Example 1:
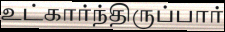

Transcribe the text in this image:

உட்கார்ந்திருப்பார்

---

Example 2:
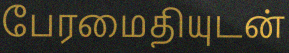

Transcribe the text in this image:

பேரமைதியுடன்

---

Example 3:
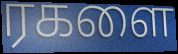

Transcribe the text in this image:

ரகளை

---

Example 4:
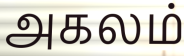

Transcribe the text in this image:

அகலம்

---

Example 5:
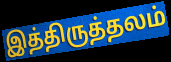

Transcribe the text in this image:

இத்திருத்தலம்